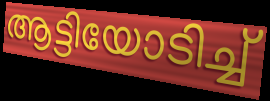
ആട്ടിയോടിച്ച്